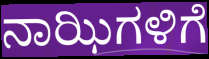
ನಾಝಿಗಳಿಗೆ